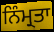
ਨਿੰਮ੍ਰਤਾ